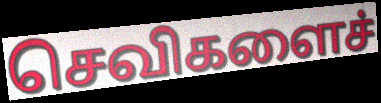
செவிகளைச்